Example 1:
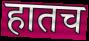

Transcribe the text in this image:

हातच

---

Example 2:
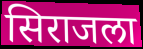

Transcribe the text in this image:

सिराजला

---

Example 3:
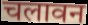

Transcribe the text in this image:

चलावन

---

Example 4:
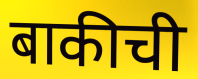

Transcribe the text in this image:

बाकीची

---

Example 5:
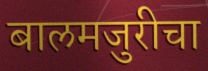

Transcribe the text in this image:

बालमजुरीचा